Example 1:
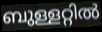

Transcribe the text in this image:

ബുള്ളറ്റിൽ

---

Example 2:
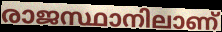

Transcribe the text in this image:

രാജസ്ഥാനിലാണ്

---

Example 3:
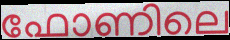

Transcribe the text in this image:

ഫോണിലെ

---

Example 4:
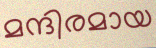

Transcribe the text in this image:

മന്ദിരമായ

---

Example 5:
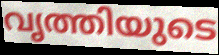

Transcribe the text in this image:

വൃത്തിയുടെ